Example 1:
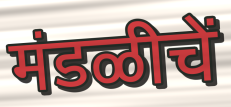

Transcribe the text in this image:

मंडळीचें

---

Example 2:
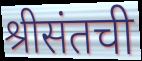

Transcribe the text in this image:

श्रीसंतची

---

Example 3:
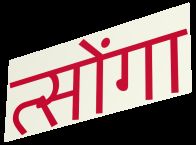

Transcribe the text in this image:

त्सोंगा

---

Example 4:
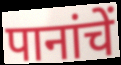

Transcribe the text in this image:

पानांचें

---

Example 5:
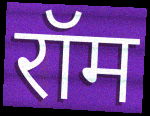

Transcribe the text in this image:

रॉम